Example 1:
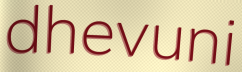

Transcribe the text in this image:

dhevuni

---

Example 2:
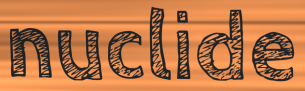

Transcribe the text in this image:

nuclide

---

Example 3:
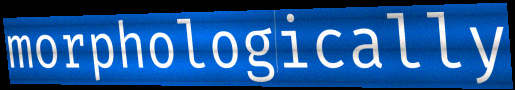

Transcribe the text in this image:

morphologically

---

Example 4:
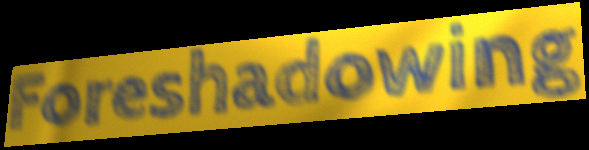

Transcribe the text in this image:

Foreshadowing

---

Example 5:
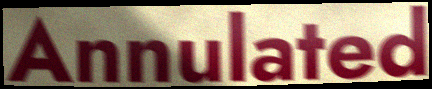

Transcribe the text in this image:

Annulated